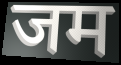
जम